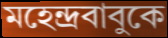
মহেন্দ্রবাবুকে